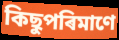
কিছুপৰিমাণে